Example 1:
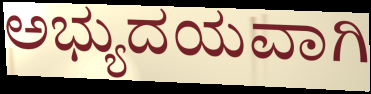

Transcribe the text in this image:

ಅಭ್ಯುದಯವಾಗಿ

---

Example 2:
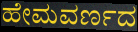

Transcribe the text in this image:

ಹೇಮವರ್ಣದ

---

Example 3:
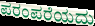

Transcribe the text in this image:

ಪರಂಪರೆಯದು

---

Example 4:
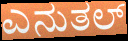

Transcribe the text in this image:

ಎನುತಲ್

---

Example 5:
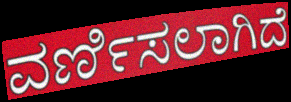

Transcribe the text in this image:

ವರ್ಣಿಸಲಾಗಿದೆ